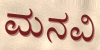
ಮನವಿ